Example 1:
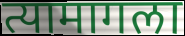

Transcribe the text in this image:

त्यामागला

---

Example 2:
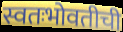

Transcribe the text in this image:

स्वतःभोवतीची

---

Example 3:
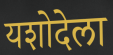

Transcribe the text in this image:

यशोदेला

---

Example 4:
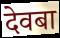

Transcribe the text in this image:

देवबा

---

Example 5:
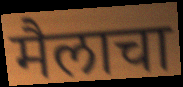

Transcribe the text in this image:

मैलाचा